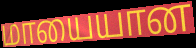
மாயையான